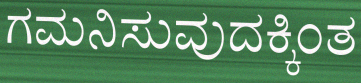
ಗಮನಿಸುವುದಕ್ಕಿಂತ